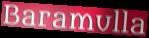
Baramulla